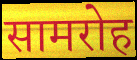
सामरोह